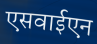
एसवाईएन